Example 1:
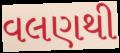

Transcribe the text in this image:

વલણથી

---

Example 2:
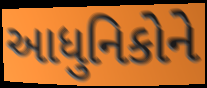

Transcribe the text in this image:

આધુનિકોને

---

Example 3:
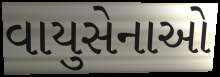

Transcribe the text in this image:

વાયુસેનાઓ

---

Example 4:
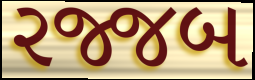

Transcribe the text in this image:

રજ્જબ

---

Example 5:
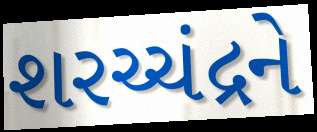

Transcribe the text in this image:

શરચ્ચંદ્રને